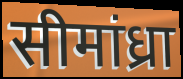
सीमांध्रा